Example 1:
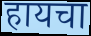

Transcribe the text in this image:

हायचा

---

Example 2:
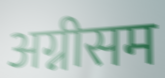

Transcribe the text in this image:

अग्नीसम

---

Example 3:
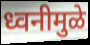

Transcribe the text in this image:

ध्वनीमुळे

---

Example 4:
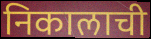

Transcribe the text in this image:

निकालाची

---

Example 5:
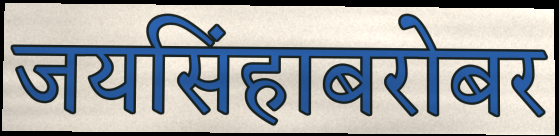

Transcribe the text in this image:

जयसिंहाबरोबर